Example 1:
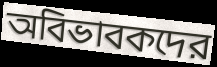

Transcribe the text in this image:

অবিভাবকদের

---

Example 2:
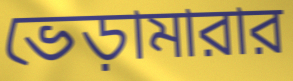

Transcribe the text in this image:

ভেড়ামারার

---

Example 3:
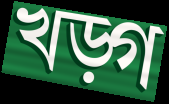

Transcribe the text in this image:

খড়্গ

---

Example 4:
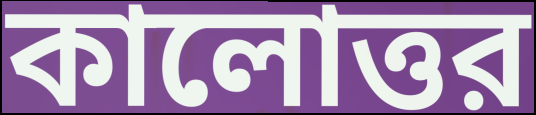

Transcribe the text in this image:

কালোত্তর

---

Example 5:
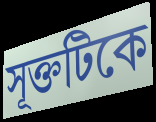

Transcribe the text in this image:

সূক্তটিকে